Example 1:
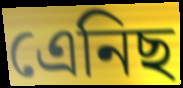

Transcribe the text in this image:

এেনিছ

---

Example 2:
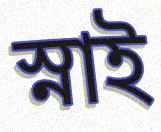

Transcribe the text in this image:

স্নাই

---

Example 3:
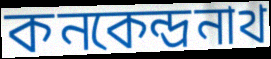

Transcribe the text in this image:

কনকেন্দ্রনাথ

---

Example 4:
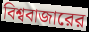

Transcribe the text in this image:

বিশ্ববাজারের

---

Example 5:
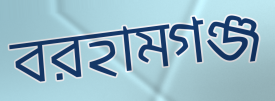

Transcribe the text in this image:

বরহামগঞ্জ